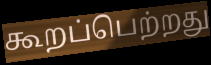
கூறப்பெற்றது